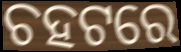
ଚହଟରେ